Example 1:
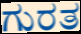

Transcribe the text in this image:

ಗುರತ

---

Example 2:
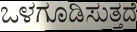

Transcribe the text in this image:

ಒಳಗೂಡಿಸುತ್ತದೆ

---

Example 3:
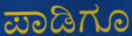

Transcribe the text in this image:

ಪಾಡಿಗೂ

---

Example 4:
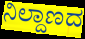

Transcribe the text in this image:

ನಿಲ್ದಾಣದ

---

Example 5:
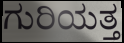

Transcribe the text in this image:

ಗುರಿಯತ್ತ